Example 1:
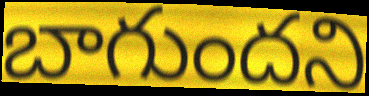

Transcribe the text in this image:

బాగుందని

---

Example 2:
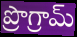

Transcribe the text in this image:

ప్రొగ్రామ్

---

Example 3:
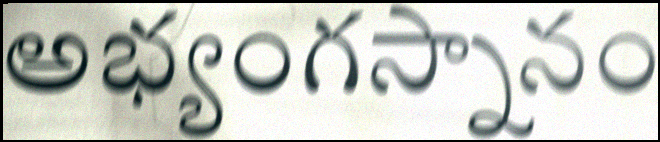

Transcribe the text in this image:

అభ్యంగస్నానం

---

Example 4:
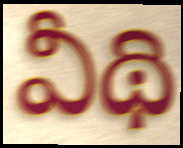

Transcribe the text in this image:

వీథి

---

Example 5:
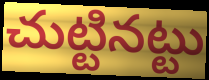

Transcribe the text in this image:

చుట్టినట్టు